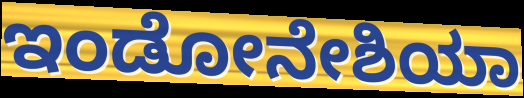
ಇಂಡೋನೇಶಿಯಾ